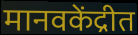
मानवकेंद्रीत